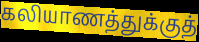
கலியாணத்துக்குத்